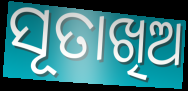
ସୂତାଖିଅ